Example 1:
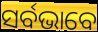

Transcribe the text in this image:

ସର୍ବଭାବେ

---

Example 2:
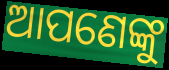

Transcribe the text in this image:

ଆପଣେଙ୍କୁ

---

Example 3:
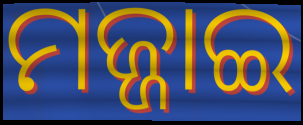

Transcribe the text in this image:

ମଜ୍ଜାଇ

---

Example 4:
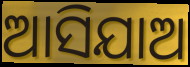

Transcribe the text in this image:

ଆସିଯାଅ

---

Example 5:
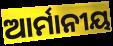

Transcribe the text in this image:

ଆର୍ମାନୀୟ